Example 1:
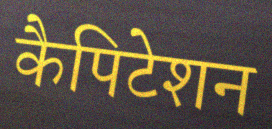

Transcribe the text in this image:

कैपिटेशन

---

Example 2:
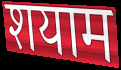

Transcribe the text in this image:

शयाम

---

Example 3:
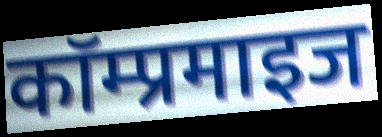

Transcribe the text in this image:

कॉम्प्रमाइज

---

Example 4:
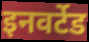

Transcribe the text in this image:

इनवर्टेड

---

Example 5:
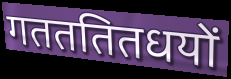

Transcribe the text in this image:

गतततितधयों